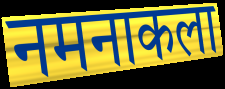
नमनाकला